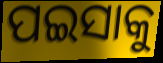
ପଇସାକୁ